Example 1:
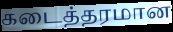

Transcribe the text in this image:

கடைத்தரமான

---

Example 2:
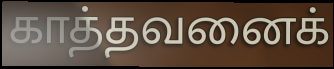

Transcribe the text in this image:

காத்தவனைக்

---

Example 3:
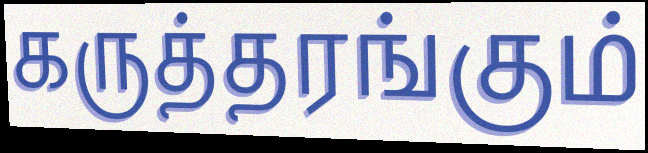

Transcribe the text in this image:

கருத்தரங்கும்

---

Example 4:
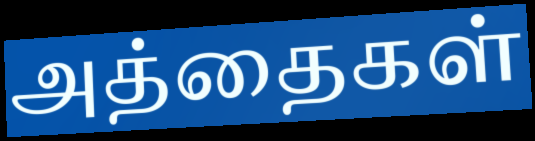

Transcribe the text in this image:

அத்தைகள்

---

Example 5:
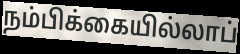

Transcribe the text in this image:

நம்பிக்கையில்லாப்